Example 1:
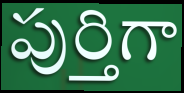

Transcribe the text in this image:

పుర్తిగా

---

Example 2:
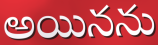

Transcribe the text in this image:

అయినను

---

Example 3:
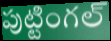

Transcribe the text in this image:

పుట్టింగల్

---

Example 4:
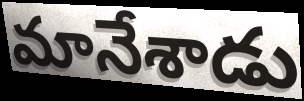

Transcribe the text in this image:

మానేశాడు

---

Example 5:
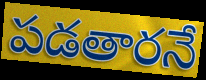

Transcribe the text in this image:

పడతారనే